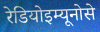
रेडियोइम्यूनोसे